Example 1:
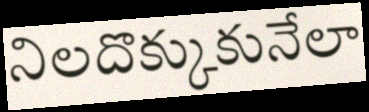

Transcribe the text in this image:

నిలదొక్కుకునేలా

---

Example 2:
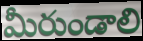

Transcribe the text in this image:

మీరుండాలి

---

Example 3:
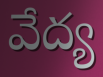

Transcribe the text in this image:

వేద్య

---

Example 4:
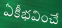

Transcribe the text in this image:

ఏకీభవించే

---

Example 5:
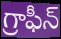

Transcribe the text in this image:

గ్రాఫీన్